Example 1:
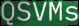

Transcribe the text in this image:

QSVMs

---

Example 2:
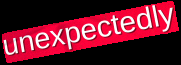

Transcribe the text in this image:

unexpectedly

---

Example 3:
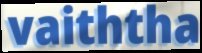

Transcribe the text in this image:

vaiththa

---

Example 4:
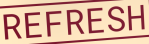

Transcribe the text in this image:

REFRESH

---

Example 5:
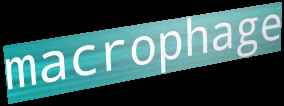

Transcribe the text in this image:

macrophage